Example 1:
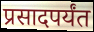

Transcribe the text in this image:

प्रसादपर्यंत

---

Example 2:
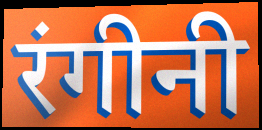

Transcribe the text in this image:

रंगीनी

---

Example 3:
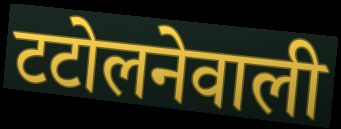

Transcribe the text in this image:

टटोलनेवाली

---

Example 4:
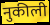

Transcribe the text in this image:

नुकीली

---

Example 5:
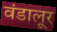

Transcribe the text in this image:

वंडालूर